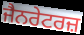
ਜੈਨਰੇਟਰਜ਼